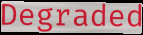
Degraded